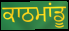
ਕਾਠਮਾਂਡੂ